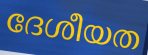
ദേശീയത